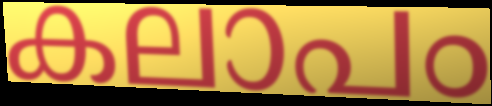
കലാപം